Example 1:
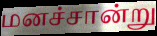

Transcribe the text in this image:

மனச்சான்று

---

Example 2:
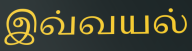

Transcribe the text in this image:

இவ்வயல்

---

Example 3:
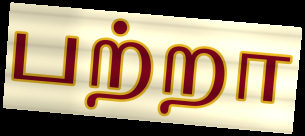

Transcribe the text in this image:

பற்றா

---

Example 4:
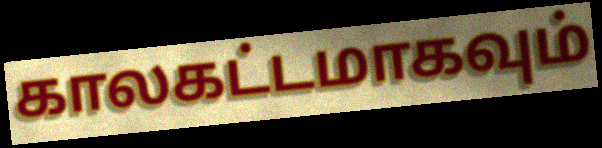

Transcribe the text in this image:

காலகட்டமாகவும்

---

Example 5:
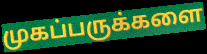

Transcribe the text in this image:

முகப்பருக்களை